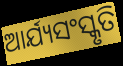
ଆର୍ଯ୍ୟସଂସ୍କୃତି